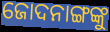
ଜୋଦନାଙ୍ଗଙ୍କୁ